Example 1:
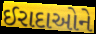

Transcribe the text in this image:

ઈરાદાઓને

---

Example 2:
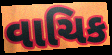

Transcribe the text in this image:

વાચિક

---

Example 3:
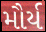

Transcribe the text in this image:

મૌર્ય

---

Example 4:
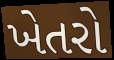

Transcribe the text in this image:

ખેતરો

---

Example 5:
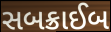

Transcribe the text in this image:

સબક્રાઈબ